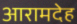
आरामदेह